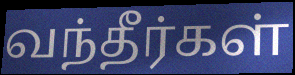
வந்தீர்கள்